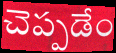
చెప్పడేం